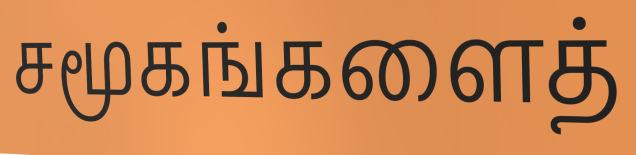
சமூகங்களைத்